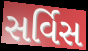
સર્વિસ